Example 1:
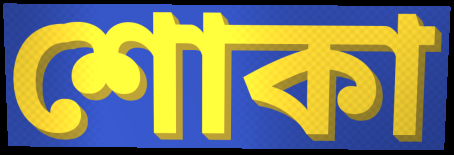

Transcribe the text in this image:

শোকা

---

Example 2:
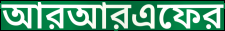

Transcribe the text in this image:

আরআরএফের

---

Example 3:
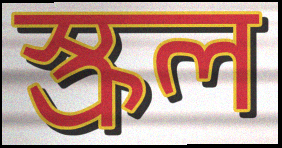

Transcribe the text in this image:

স্ক্রল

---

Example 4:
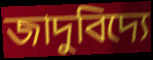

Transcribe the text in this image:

জাদুবিদ্যে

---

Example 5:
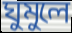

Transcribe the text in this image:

ঘুমুলে